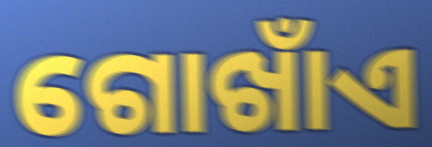
ଗୋଖାଁଏ